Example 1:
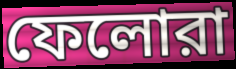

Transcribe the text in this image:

ফেলোরা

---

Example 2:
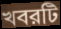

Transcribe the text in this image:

খবরটি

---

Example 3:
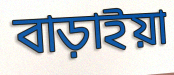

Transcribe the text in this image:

বাড়াইয়া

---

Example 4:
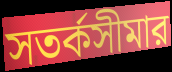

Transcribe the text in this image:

সতর্কসীমার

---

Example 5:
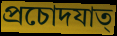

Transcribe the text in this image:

প্রচোদযাত্